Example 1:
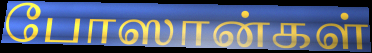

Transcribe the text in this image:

போஸான்கள்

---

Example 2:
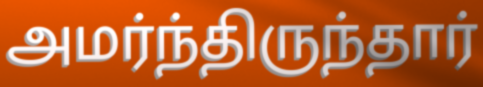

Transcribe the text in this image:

அமர்ந்திருந்தார்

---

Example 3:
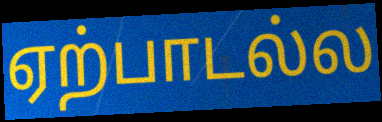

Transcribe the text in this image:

ஏற்பாடல்ல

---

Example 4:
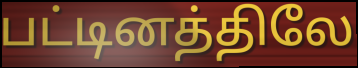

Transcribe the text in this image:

பட்டினத்திலே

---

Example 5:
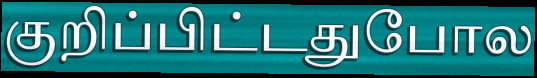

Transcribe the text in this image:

குறிப்பிட்டதுபோல